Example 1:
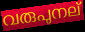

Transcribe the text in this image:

വരുപുനല്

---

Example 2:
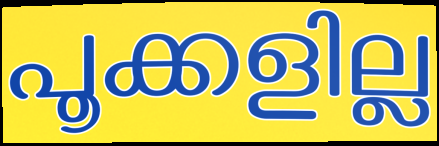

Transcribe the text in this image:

പൂക്കളില്ല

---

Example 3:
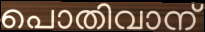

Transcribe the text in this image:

പൊതിവാന്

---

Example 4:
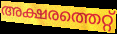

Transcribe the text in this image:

അക്ഷരത്തെറ്റ്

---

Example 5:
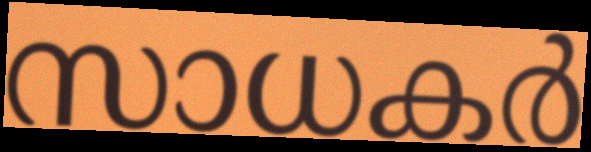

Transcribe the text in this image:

സാധകർ